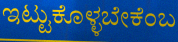
ಇಟ್ಟುಕೊಳ್ಳಬೇಕೆಂಬ